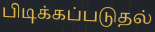
பிடிக்கப்படுதல்